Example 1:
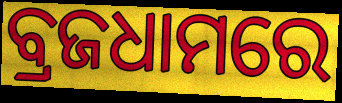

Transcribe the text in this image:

ବ୍ରଜଧାମରେ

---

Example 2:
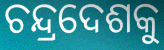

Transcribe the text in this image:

ଚନ୍ଦ୍ରଦେଶକୁ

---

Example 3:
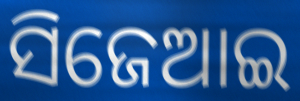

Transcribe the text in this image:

ସିଜେଆଇ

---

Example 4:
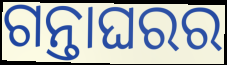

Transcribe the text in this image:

ଗନ୍ତାଘରର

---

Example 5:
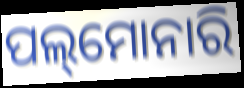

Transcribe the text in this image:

ପଲ୍‌ମୋନାରି